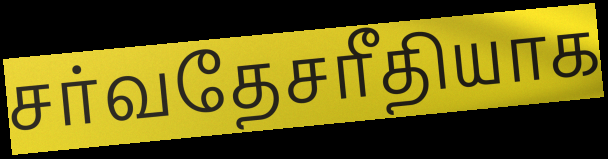
சர்வதேசரீதியாக